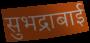
सुभद्राबाई